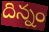
దిన్నం